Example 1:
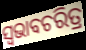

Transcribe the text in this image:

ସ୍ବଭାବଚରିତ୍ର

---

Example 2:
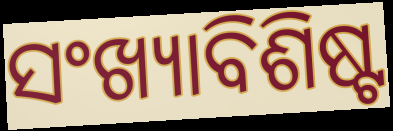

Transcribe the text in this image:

ସଂଖ୍ୟାବିଶିଷ୍ଟ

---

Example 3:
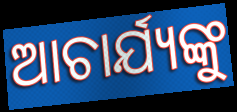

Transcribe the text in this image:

ଆଚାର୍ଯ୍ୟଙ୍କୁ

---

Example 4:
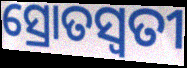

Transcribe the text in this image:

ସ୍ରୋତସ୍ଵତୀ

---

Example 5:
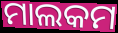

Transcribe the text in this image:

ମାଲକମ